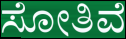
ಸೋತಿವೆ